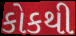
કોકથી